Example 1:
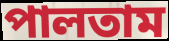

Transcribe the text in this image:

পালতাম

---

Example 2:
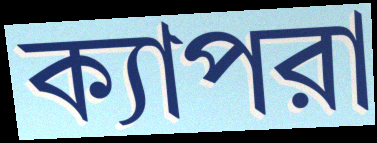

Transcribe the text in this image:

ক্যাপরা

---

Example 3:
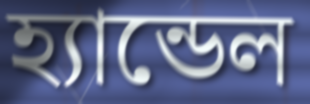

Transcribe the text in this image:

হ্যান্ডেল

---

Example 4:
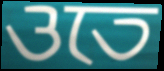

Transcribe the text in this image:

ওতে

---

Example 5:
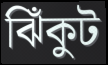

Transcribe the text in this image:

ঝিঁকুট